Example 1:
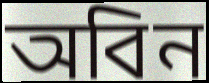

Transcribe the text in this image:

অবিন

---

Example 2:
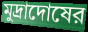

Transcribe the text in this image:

মুদ্রাদোষের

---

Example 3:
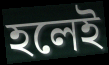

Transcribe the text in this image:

হলেই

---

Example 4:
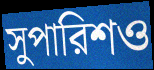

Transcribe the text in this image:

সুপারিশও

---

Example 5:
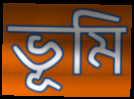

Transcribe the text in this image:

ভূমি